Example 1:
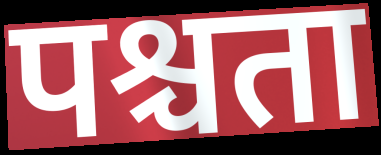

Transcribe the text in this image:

पश्चता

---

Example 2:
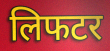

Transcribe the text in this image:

लिफटर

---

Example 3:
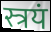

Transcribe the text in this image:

स्त्रयं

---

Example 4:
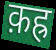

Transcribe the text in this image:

क़ह्र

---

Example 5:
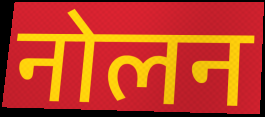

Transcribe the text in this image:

नोलन